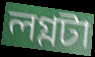
লগ্নটা